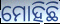
ମୋହିଛି